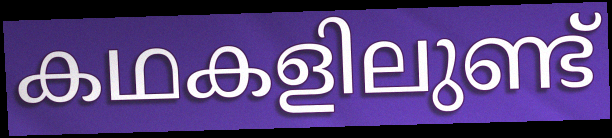
കഥകളിലുണ്ട്